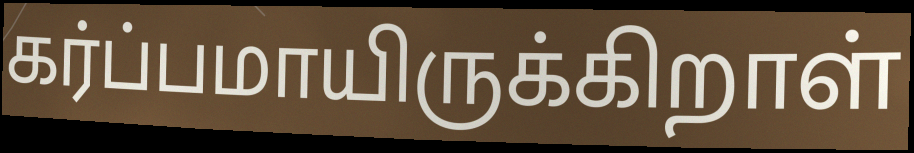
கர்ப்பமாயிருக்கிறாள்